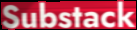
Substack